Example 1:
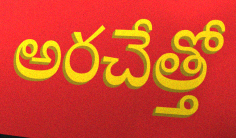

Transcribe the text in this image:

అరచేత్తో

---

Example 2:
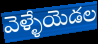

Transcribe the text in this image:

వెళ్ళేయెడల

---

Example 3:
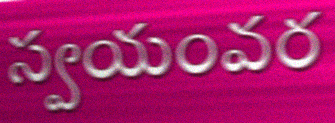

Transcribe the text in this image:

స్వయంవర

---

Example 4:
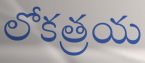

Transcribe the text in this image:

లోకత్రయ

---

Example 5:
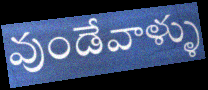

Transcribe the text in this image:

వుండేవాళ్ళు